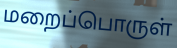
மறைப்பொருள்